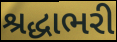
શ્રદ્ધાભરી